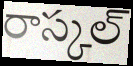
రాస్కల్